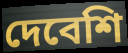
দেবেশি